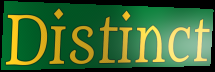
Distinct